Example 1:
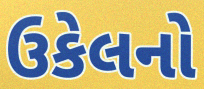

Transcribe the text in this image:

ઉકેલનો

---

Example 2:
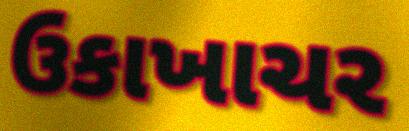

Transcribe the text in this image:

ઉકાખાચર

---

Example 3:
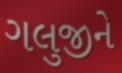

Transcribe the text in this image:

ગલુજીને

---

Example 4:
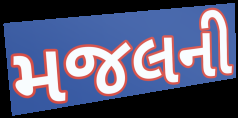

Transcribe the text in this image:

મજલની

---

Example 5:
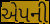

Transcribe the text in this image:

એપની